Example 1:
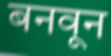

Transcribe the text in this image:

बनवून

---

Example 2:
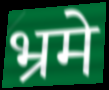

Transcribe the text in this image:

भ्रमे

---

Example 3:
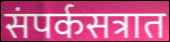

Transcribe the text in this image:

संपर्कसत्रात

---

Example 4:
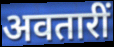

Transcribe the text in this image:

अवतारीं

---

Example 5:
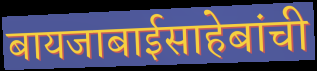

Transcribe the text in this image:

बायजाबाईसाहेबांची